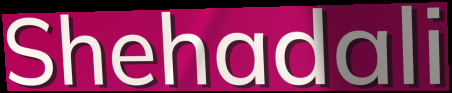
Shehadali